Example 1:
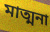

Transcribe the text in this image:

মাত্মনা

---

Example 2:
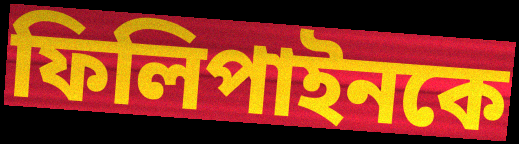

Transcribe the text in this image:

ফিলিপাইনকে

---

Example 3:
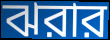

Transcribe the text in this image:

ঝরার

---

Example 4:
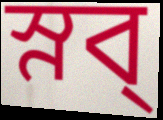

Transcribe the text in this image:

স্নব্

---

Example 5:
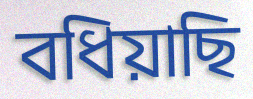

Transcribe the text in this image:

বধিয়াছি